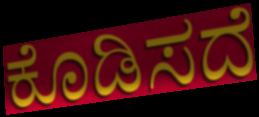
ಕೊಡಿಸದೆ